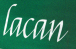
lacan